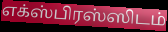
எக்ஸ்பிரஸ்ஸிடம்